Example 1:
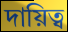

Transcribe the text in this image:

দায়িত্ব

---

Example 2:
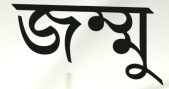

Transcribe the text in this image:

জম্মু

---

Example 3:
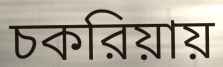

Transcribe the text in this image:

চকরিয়ায়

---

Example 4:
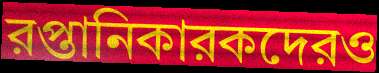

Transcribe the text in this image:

রপ্তানিকারকদেরও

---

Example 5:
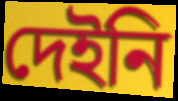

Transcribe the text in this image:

দেইনি